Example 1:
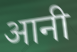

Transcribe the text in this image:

आनी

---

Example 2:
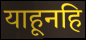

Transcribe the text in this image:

याहूनहि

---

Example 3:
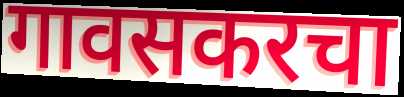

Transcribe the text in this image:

गावसकरचा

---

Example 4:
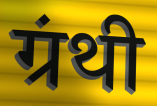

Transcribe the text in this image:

ग्रंथी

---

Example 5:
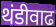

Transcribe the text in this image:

थंडीवाढ